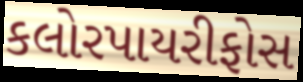
કલોરપાયરીફોસ